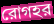
রোগহর